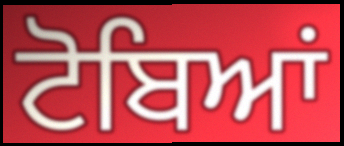
ਟੋਬਿਆਂ